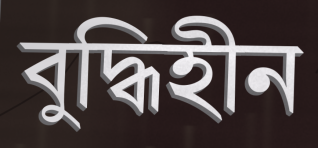
বুদ্ধিহীন